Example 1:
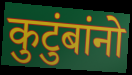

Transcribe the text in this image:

कुटुंबांनो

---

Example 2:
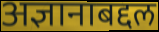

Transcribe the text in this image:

अज्ञानाबद्दल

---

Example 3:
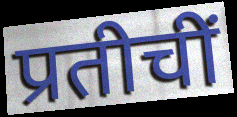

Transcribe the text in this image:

प्रतीचीं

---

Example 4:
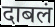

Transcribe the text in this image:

दाबलं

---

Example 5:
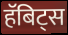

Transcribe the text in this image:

हॅबिट्स